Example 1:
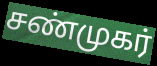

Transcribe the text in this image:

சண்முகர்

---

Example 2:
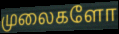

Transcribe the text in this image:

முலைகளோ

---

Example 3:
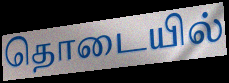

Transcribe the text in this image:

தொடையில்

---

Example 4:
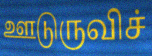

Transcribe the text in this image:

ஊடுருவிச்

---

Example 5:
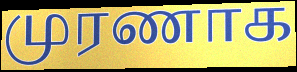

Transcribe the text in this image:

முரணாக